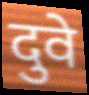
दुवे